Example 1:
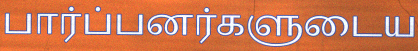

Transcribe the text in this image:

பார்ப்பனர்களுடைய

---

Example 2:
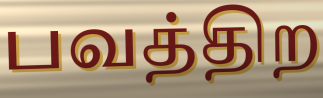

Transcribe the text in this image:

பவத்திற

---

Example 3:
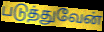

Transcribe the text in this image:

படுத்துவேன்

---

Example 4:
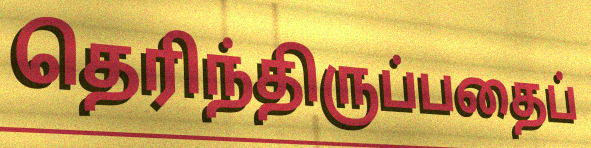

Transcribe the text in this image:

தெரிந்திருப்பதைப்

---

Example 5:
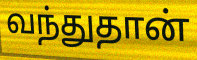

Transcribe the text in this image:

வந்துதான்